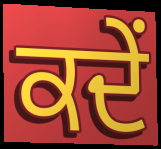
ਕਦੇਂ